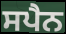
ਸਪੈਨ